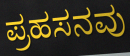
ಪ್ರಹಸನವು